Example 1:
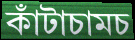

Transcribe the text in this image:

কাঁটাচামচ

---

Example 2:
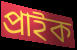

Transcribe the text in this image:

প্রাইক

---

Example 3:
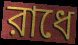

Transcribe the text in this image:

রাধে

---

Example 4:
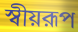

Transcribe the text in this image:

স্বীয়রূপ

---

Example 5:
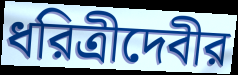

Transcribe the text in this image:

ধরিত্রীদেবীর